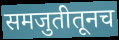
समजुतीतूनच